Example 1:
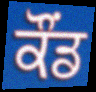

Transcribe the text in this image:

ਕੌਂਡ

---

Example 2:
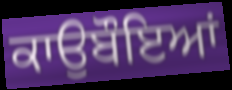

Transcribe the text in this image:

ਕਾਉਬੌਇਆਂ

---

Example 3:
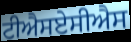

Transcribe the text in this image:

ਟੀਐਸਏਸੀਐਸ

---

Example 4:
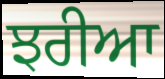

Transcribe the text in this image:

ਝਰੀਆ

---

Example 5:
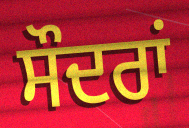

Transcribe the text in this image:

ਸੌਦਰਾਂ